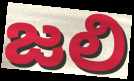
జలి